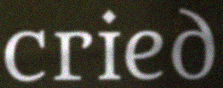
cried